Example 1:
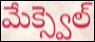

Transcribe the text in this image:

మేక్స్వెల్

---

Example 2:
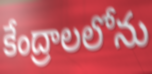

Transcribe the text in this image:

కేంద్రాలలోను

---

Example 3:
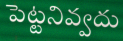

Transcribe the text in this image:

పెట్టనివ్వదు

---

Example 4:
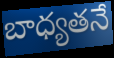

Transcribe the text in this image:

బాధ్యతనే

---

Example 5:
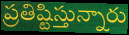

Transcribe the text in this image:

ప్రతిష్టిస్తున్నారు